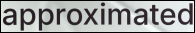
approximated